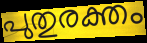
പുതുരക്തം